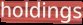
holdings